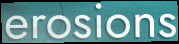
erosions